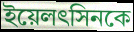
ইয়েলৎসিনকে